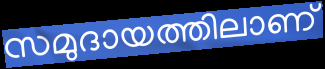
സമുദായത്തിലാണ്